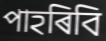
পাহৰিবি